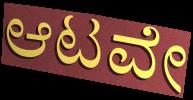
ಆಟವೇ